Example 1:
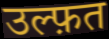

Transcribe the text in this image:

उल्फ़त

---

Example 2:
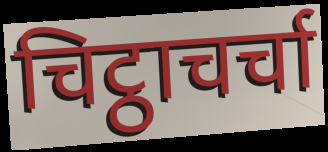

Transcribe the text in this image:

चिट्ठाचर्चा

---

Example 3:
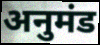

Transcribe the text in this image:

अनुमंड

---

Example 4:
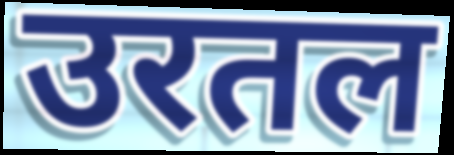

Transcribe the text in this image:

उरतल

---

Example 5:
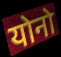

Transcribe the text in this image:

योनो